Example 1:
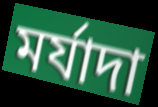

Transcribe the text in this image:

মৰ্যাদা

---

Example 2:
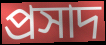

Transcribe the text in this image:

প্ৰসাদ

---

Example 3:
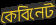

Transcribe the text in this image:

কেবিনেট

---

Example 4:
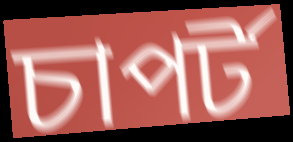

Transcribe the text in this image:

চাপৰ্ট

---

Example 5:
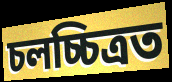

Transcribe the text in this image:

চলচ্চিত্ৰত